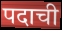
पदाची